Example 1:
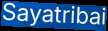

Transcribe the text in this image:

Sayatribai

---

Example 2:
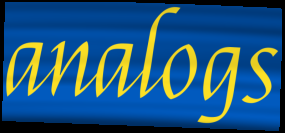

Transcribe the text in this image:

analogs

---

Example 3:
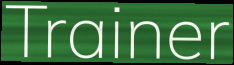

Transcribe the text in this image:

Trainer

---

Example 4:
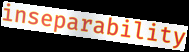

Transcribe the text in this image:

inseparability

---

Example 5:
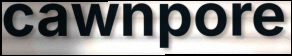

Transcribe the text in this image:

cawnpore